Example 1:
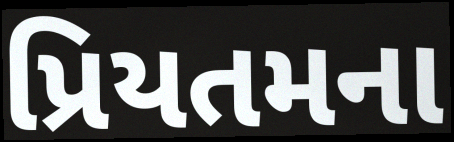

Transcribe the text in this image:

પ્રિયતમના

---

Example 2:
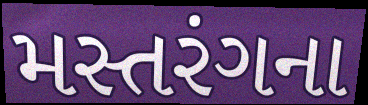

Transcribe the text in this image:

મસ્તરંગના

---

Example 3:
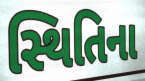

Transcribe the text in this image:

સ્થિતિના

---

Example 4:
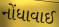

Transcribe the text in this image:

નોંધાવાઈ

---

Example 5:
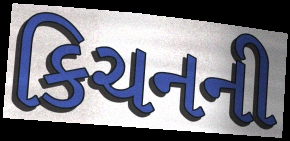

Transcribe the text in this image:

કિચનની